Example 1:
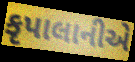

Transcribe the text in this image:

કૃપાલાનીએ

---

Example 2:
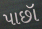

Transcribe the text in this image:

પાછૉ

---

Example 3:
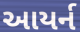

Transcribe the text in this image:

આયર્ન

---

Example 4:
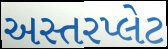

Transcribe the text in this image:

અસ્તરપ્લેટ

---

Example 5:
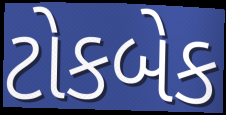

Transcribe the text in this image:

ટોકબેક